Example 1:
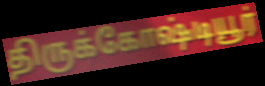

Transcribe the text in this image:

திருக்கோஷ்டியூர்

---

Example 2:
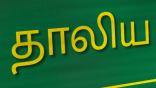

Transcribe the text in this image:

தாலிய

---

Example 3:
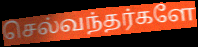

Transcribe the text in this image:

செல்வந்தர்களே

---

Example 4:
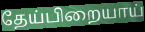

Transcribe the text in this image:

தேய்பிறையாய்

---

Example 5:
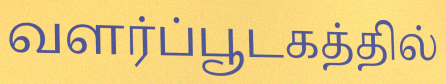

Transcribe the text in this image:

வளர்ப்பூடகத்தில்